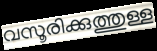
വസൂരിക്കുത്തുള്ള